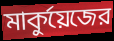
মার্কুয়েজের